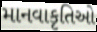
માનવાકૃતિઓ